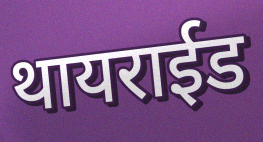
थायराईड